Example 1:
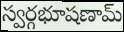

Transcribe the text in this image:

స్వర్గభూషణామ్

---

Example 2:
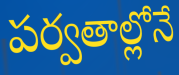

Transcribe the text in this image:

పర్వతాల్లోనే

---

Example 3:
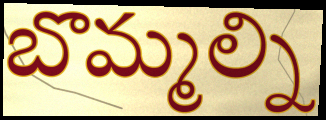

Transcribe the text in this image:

బొమ్మల్ని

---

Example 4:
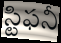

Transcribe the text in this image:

స్టిఫనీ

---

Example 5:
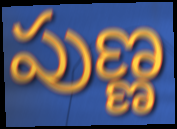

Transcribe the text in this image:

పుణ్ణ